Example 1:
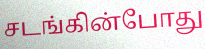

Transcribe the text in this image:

சடங்கின்போது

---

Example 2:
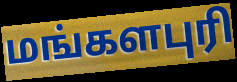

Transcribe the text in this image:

மங்களபுரி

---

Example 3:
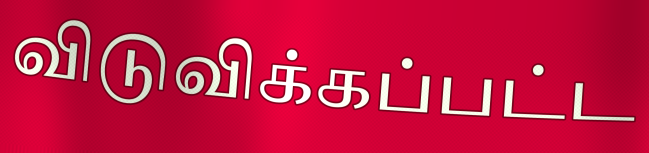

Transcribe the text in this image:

விடுவிக்கப்பட்ட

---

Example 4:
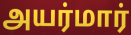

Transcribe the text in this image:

அயர்மார்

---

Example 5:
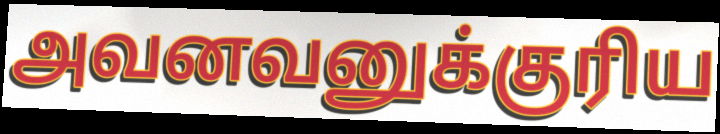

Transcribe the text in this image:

அவனவனுக்குரிய